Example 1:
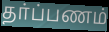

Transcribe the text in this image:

தர்ப்பணம்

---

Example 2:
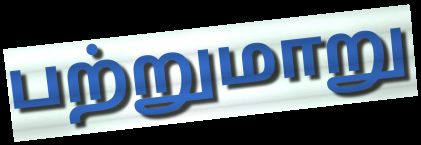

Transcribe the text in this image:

பற்றுமாறு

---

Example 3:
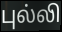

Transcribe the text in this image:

புல்லி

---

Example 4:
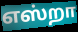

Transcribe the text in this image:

எஸ்றா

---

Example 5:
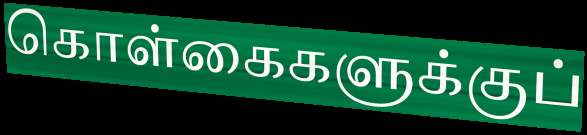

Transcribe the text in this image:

கொள்கைகளுக்குப்